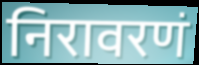
निरावरणं